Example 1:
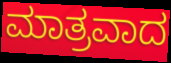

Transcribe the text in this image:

ಮಾತ್ರವಾದ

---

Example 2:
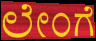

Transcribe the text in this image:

ಲೇಂಗೆ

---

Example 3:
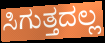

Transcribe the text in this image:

ಸಿಗುತ್ತದಲ್ಲ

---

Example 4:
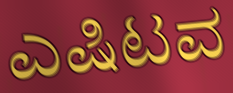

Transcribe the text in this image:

ಎಷಿಟವ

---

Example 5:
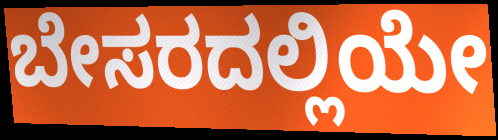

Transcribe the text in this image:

ಬೇಸರದಲ್ಲಿಯೇ